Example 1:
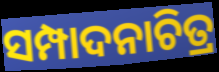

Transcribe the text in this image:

ସମ୍ପାଦନାଚିତ୍ର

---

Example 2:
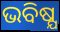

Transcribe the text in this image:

ଭବିଷ୍ଯ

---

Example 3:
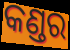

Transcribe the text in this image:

କଣ୍ଡର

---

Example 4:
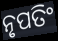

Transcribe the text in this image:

ନୃପତିଂ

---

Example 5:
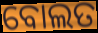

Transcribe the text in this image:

ବୋଲତ